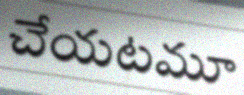
చేయటమూ